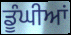
ਡੂੰਘੀਆਂ